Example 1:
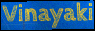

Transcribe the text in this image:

Vinayaki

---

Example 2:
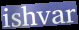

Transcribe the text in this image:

ishvar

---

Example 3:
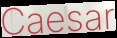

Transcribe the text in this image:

Caesar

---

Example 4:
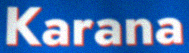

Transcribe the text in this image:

Karana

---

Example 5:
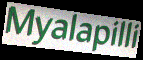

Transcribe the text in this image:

Myalapilli